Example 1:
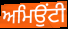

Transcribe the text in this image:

ਅਮਿਉਂਟੀ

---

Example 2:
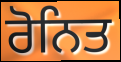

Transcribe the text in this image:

ਰੋਨਿਤ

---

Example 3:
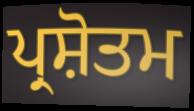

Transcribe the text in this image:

ਪ੍ਰਸ਼ੋਤਮ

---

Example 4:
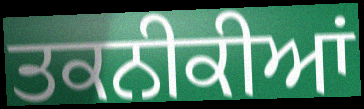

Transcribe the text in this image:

ਤਕਨੀਕੀਆਂ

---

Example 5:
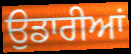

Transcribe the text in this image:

ਉੁਡਾਰੀਆਂ